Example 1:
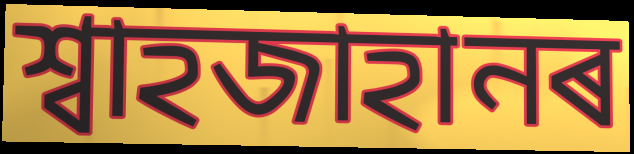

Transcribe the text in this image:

শ্বাহজাহানৰ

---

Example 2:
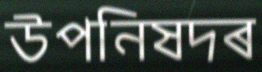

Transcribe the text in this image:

উপনিষদৰ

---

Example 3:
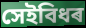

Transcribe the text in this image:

সেইবিধৰ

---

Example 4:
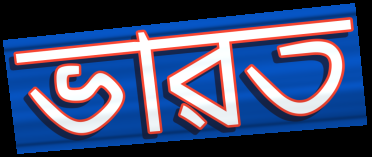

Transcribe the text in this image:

ভাৱত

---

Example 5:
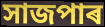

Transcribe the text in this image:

সাজপাৰ